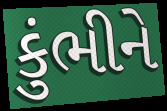
કુંભીને